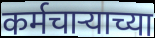
कर्मचाऱ्याच्या